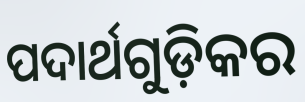
ପଦାର୍ଥଗୁଡ଼ିକର